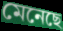
মেনেছে